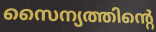
സൈന്യത്തിന്റെ